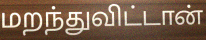
மறந்துவிட்டான்